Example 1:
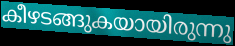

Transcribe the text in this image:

കീഴടങ്ങുകയായിരുന്നു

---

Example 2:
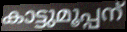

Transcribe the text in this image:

കാട്ടുമൂപ്പന്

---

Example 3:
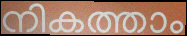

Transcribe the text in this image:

നികത്താം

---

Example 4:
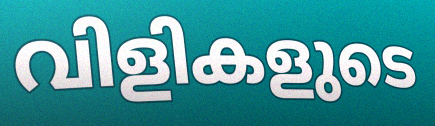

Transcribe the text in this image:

വിളികളുടെ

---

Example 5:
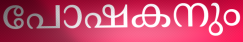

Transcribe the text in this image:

പോഷകനും